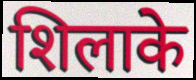
शिलाके